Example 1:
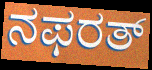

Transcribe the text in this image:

ನಫರತ್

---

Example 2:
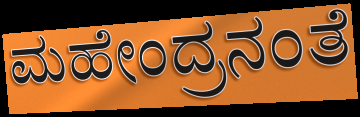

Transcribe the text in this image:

ಮಹೇಂದ್ರನಂತೆ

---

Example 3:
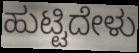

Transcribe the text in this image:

ಹುಟ್ಟಿದೇಳು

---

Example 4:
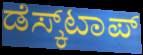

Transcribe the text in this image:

ಡೆಸ್ಕ್‌ಟಾಪ್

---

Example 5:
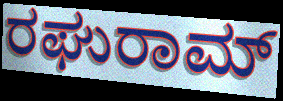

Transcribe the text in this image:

ರಘುರಾಮ್